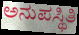
ಅನುಪಸ್ಥಿತಿ